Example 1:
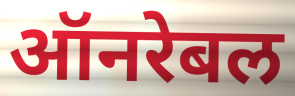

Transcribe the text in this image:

ऑनरेबल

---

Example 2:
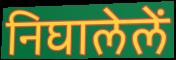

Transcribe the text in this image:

निघालेलें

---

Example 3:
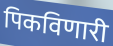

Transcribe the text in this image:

पिकविणारी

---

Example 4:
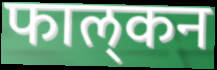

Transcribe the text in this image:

फाल्कन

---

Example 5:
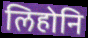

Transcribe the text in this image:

लिहोनि